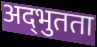
अद्‌भुतता